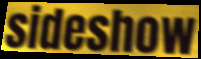
sideshow